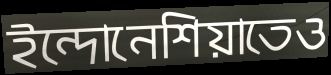
ইন্দোনেশিয়াতেও